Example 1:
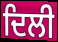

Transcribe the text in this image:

ਦਿਲੀ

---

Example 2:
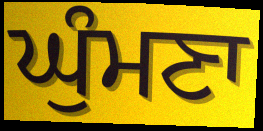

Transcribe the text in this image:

ਘੁੰਮਣਾ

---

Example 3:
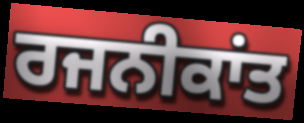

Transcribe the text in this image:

ਰਜਨੀਕਾਂਤ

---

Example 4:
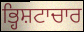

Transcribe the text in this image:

ਭ੍ਹਿਸ਼ਟਾਚਾਰ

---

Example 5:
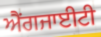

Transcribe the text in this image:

ਐਂਗਜਾਈਟੀ